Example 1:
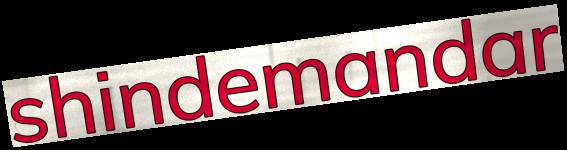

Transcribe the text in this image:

shindemandar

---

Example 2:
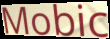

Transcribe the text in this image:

Mobic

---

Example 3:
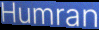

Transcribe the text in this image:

Humran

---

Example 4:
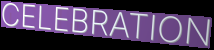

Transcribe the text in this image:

CELEBRATION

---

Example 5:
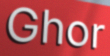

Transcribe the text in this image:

Ghor